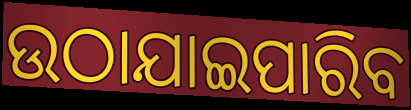
ଉଠାଯାଇପାରିବ